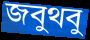
জবুথবু